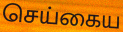
செய்கைய